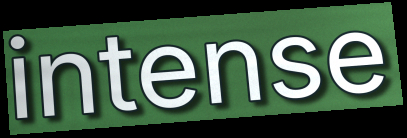
intense